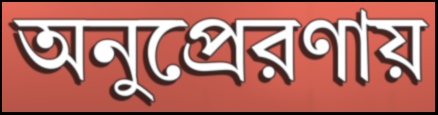
অনুপ্রেরণায়